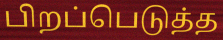
பிறப்பெடுத்த